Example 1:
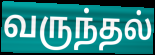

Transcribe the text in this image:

வருந்தல்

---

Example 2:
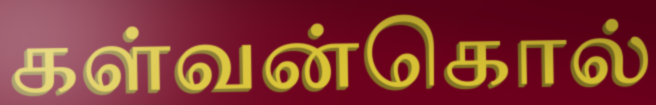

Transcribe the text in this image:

கள்வன்கொல்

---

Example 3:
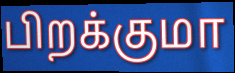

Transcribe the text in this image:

பிறக்குமா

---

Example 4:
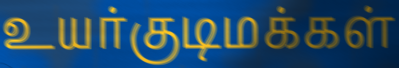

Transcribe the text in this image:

உயர்குடிமக்கள்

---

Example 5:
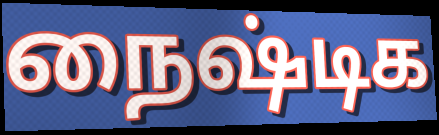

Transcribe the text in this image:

நைஷ்டிக